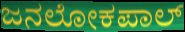
ಜನಲೋಕಪಾಲ್